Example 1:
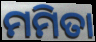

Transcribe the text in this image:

ମମିତା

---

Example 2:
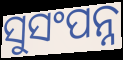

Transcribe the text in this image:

ସୁସଂପନ୍ନ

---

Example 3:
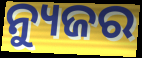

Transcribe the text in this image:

ନ୍ୟୁଜର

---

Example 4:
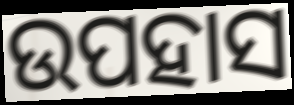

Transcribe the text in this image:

ଉପହାସ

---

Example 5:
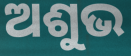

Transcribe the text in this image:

ଅଶୁଭ